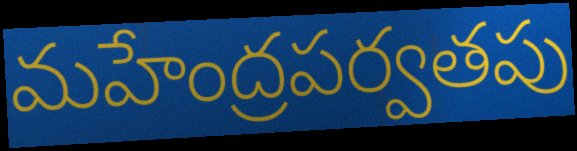
మహేంద్రపర్వతపు